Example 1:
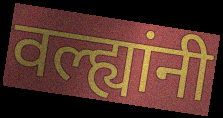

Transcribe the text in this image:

वल्ह्यांनी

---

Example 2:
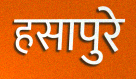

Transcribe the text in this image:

हसापुरे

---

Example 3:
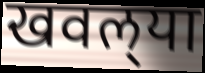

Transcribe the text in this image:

खवल्या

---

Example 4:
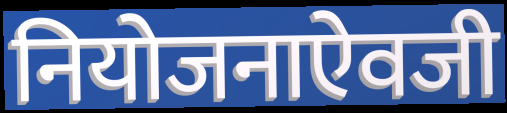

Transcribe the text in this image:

नियोजनाऐवजी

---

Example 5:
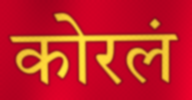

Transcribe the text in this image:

कोरलं